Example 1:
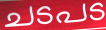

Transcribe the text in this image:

ചടപട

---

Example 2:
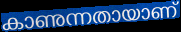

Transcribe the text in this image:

കാണുന്നതായാണ്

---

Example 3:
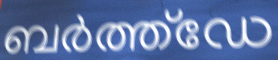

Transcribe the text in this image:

ബർത്ത്ഡേ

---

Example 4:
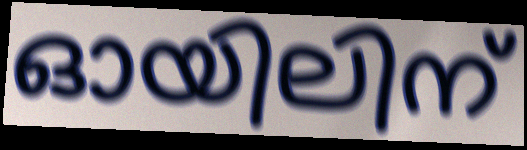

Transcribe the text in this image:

ഓയിലിന്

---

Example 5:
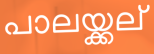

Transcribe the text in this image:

പാലയ്ക്കല്